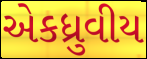
એકધ્રુવીય